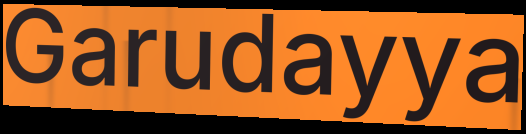
Garudayya